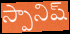
స్పానిష్